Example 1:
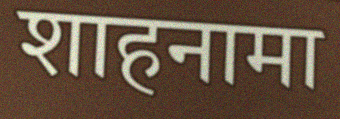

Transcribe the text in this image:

शाहनामा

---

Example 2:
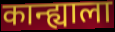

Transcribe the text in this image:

कान्ह्याला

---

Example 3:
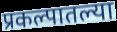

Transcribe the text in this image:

प्रकल्पातल्या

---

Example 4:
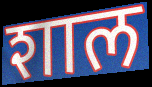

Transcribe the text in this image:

शाल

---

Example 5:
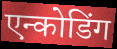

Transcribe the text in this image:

एन्कोडिंग